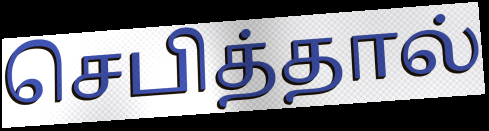
செபித்தால்